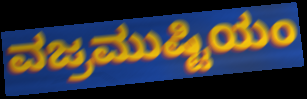
ವಜ್ರಮುಷ್ಟಿಯಂ